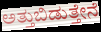
ಅತ್ತುಬಿಡುತ್ತೇನೆ